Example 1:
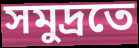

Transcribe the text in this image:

সমুদ্ৰতে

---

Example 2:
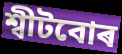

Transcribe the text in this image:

শ্বীটবোৰ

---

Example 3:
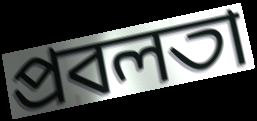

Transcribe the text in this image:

প্ৰবলতা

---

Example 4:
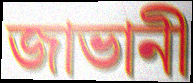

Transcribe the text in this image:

জাভানী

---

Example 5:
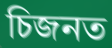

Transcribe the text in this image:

চিজনত